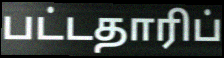
பட்டதாரிப்